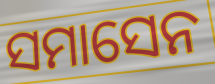
ସମାସେନ